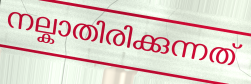
നല്കാതിരിക്കുന്നത്